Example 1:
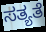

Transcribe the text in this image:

ಸತ್ಯತೆ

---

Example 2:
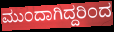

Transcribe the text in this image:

ಮುಂದಾಗಿದ್ದರಿಂದ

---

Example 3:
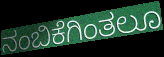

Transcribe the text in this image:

ನಂಬಿಕೆಗಿಂತಲೂ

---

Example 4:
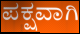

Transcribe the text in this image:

ಪಕ್ಷವಾಗಿ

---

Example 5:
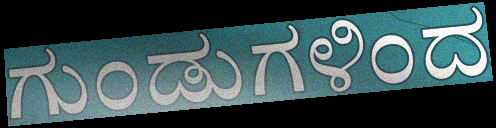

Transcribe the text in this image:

ಗುಂಡುಗಳಿಂದ